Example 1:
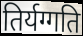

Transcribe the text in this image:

तिर्यग्गति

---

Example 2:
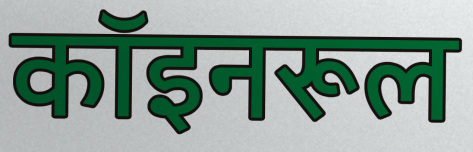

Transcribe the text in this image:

कॉइनरूल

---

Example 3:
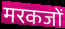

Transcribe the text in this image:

मरकजों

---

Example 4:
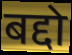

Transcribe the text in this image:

बद्दो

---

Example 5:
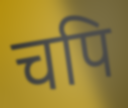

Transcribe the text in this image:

चपि